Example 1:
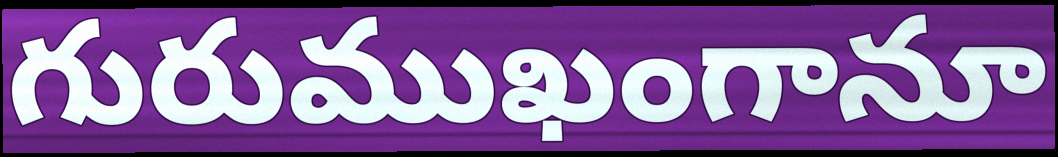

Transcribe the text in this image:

గురుముఖంగానూ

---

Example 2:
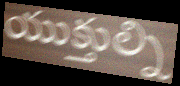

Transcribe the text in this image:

యుక్తుల్ని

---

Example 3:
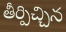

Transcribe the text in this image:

తీర్పిచ్చిన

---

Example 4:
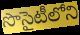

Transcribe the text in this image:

సొసైటీలోని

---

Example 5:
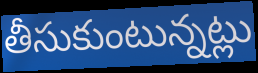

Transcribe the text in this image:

తీసుకుంటున్నట్లు